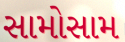
સામોસામ